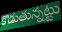
కొడుతున్నట్టు